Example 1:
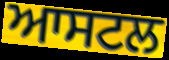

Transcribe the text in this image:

ਆਸਟਲ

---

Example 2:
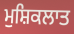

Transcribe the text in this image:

ਮੁਸ਼ਿਕਲਾਤ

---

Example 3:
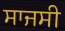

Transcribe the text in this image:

ਸਾਜਸੀ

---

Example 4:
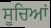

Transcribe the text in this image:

ਸੂਚਿਆਂ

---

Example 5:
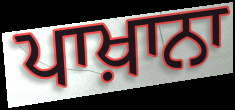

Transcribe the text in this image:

ਪਾਖ਼ਾਨਾ